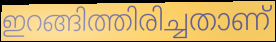
ഇറങ്ങിത്തിരിച്ചതാണ്